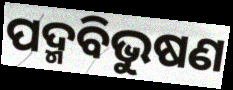
ପଦ୍ମବିଭୁଷଣ